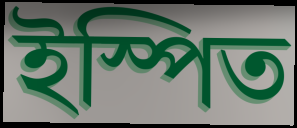
ইস্পিত